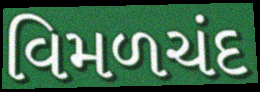
વિમળચંદ